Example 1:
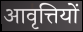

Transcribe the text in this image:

आवृत्तियों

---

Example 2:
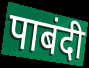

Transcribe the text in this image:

पाबंदी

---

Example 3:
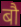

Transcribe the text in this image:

बौ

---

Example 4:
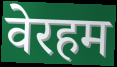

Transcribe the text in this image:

वेरहम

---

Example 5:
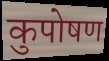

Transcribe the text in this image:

कुपोषण